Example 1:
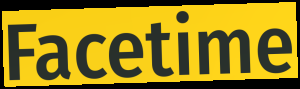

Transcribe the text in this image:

Facetime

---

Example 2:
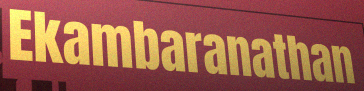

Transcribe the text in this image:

Ekambaranathan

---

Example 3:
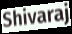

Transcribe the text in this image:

Shivaraj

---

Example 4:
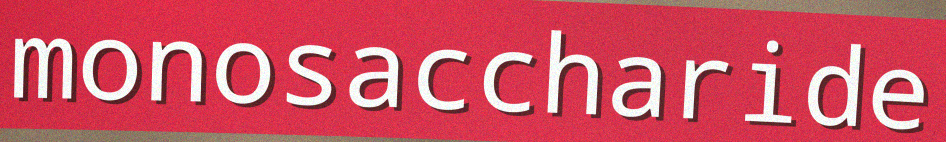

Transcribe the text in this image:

monosaccharide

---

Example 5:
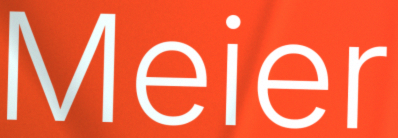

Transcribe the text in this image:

Meier